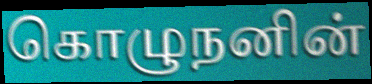
கொழுநனின்